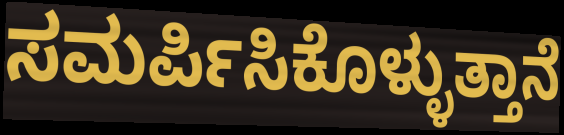
ಸಮರ್ಪಿಸಿಕೊಳ್ಳುತ್ತಾನೆ